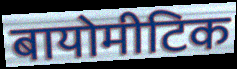
बायोमीटिक